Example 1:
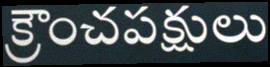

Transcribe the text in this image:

క్రౌంచపక్షులు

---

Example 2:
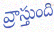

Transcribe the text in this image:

వ్రాస్తుంది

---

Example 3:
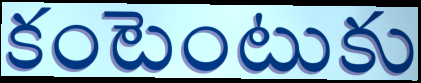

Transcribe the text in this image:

కంటెంటుకు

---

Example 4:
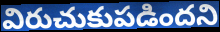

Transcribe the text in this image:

విరుచుకుపడిందని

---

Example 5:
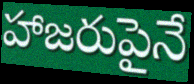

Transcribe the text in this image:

హాజరుపైనే